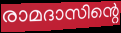
രാമദാസിന്റെ